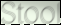
Stool